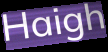
Haigh